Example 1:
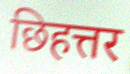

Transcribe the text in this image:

छिहत्तर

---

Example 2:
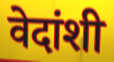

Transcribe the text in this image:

वेदांशी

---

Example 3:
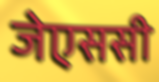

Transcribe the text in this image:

जेएससी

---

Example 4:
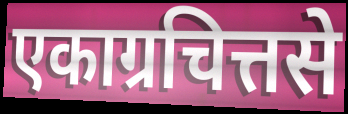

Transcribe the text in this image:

एकाग्रचित्तसे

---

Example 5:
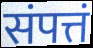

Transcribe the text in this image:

संपत्तं